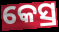
କେସ୍ର